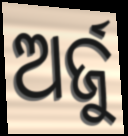
ଅର୍ଜୁ